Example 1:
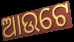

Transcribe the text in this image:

ଆଉଟେ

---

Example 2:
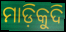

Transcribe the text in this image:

ମାଡ଼ିକୁଦି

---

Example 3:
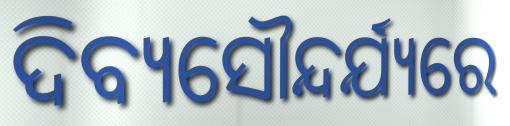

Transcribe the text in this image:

ଦିବ୍ୟସୌନ୍ଦର୍ଯ୍ୟରେ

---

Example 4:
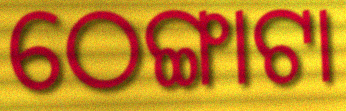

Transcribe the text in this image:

ଠେଙ୍ଗାଟା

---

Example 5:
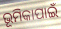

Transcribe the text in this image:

ଭୂମିକାପାଇଁ